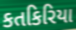
કતકિરિયા